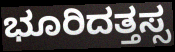
ಭೂರಿದತ್ತಸ್ಸ